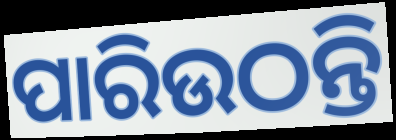
ପାରିଉଠନ୍ତି